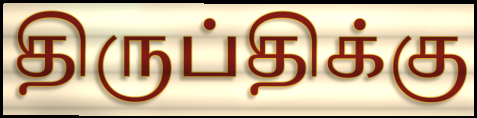
திருப்திக்கு